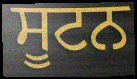
ਸੂਟਨ